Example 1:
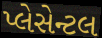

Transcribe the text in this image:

પ્લેસેન્ટલ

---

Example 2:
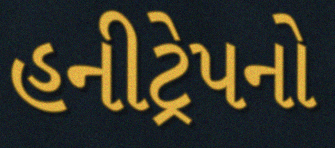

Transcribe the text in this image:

હનીટ્રેપનો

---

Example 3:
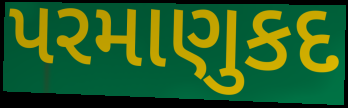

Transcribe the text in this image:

પરમાણુકદ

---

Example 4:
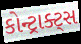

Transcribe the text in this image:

કોન્ટ્રાક્ટ્સ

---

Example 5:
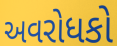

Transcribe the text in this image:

અવરોધકો